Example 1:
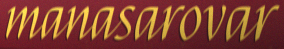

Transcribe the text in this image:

manasarovar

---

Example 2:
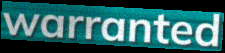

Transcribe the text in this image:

warranted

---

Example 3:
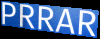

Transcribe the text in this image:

PRRAR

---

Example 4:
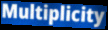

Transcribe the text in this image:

Multiplicity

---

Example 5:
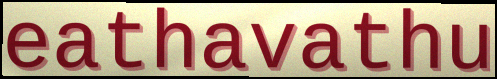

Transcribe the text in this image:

eathavathu